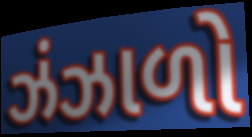
ઝંઝાળો